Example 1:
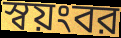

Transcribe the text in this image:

স্বয়ংবর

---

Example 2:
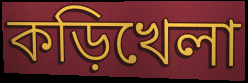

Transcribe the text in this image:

কড়িখেলা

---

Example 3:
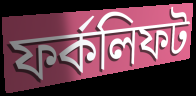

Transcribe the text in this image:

ফর্কলিফট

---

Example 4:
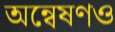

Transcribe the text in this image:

অন্বেষণও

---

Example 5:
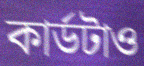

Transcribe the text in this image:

কার্ডটাও